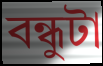
বন্ধুটা